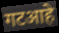
गटआहे